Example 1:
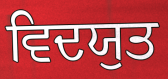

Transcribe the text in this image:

ਵਿਦਯੁਤ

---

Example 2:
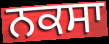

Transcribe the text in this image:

ਨਕਸਾ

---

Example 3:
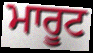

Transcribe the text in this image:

ਮਾਰੂਟ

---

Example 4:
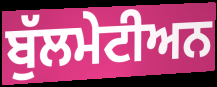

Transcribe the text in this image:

ਬੁੱਲਮੇਟੀਅਨ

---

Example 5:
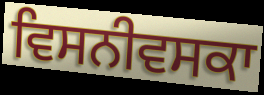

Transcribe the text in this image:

ਵਿਸਨੀਵਸਕਾ